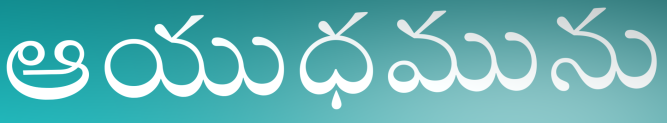
ఆయుధమును